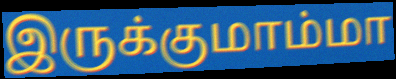
இருக்குமாம்மா